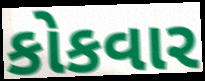
કોકવાર